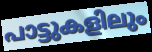
പാട്ടുകളിലും